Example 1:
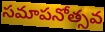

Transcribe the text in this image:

సమాపనోత్సవ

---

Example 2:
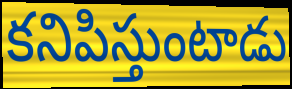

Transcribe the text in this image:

కనిపిస్తుంటాడు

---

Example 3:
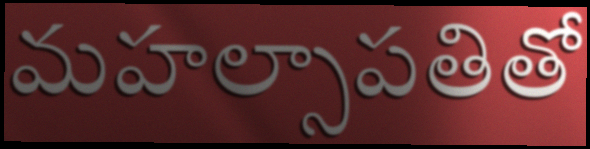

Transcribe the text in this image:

మహల్సాపతితో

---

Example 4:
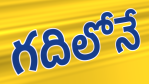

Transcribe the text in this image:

గదిలోనే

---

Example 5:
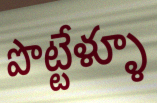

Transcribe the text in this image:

పొట్టేళ్ళూ